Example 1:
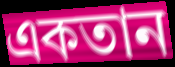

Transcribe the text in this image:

একতান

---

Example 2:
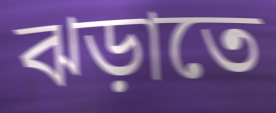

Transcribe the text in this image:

ঝড়াতে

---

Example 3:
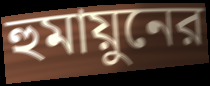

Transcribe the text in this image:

হুমায়ুনের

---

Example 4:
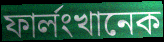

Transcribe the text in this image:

ফার্লংখানেক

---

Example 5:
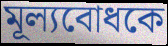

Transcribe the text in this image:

মূল্যবোধকে